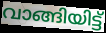
വാങ്ങിയിട്ട്